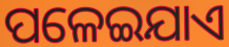
ପଳେଇଯାଏ